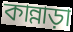
কান্নাড়া